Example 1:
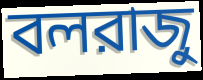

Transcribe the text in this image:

বলরাজু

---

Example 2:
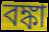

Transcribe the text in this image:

বঙ্কা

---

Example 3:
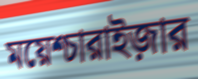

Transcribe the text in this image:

ময়েশ্চারাইজ়ার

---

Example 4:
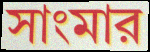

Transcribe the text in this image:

সাংমার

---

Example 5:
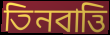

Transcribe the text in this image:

তিনবাত্তি